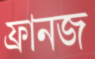
ফ্রানজ